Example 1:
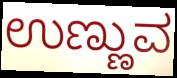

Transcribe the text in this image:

ಉಣ್ಣುವ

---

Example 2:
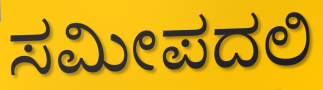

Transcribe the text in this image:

ಸಮೀಪದಲಿ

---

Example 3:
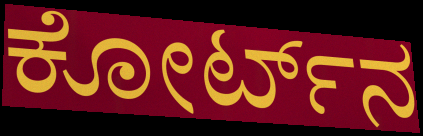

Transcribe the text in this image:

ಕೋರ್ಟ್‌ನ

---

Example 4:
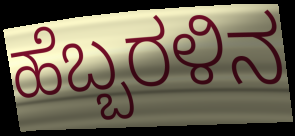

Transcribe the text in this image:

ಹೆಬ್ಬರಳಿನ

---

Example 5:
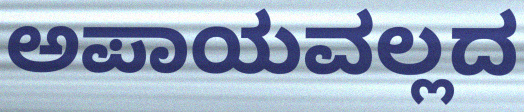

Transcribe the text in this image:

ಅಪಾಯವಲ್ಲದ